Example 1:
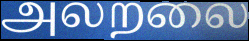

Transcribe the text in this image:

அலறலை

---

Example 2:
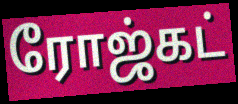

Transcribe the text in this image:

ரோஜ்கட்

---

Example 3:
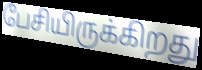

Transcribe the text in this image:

பேசியிருக்கிறது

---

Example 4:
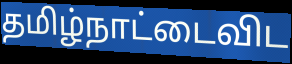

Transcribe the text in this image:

தமிழ்நாட்டைவிட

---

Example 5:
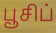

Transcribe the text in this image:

பூசிப்